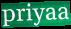
priyaa